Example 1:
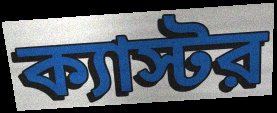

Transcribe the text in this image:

ক্যাস্টর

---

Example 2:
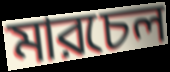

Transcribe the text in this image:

মারচেল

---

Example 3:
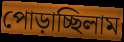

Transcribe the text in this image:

পোড়াচ্ছিলাম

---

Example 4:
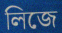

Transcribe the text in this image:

লিজে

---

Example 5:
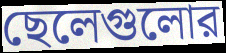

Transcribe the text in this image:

ছেলেগুলোর